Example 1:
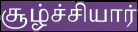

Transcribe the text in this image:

சூழ்ச்சியார்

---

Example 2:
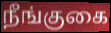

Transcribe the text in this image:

நீங்குகை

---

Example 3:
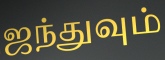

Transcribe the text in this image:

ஜந்துவும்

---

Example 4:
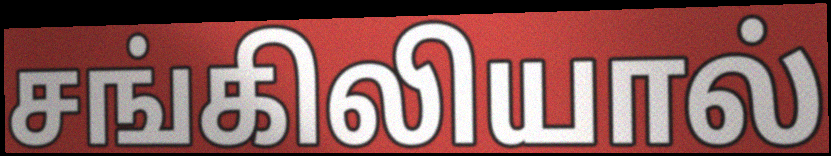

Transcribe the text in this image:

சங்கிலியால்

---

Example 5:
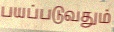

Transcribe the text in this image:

பயப்படுவதும்